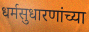
धर्मसुधारणांच्या